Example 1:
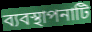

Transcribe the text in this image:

ব্যবস্থাপনাটি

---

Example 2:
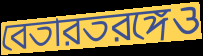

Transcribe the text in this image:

বেতারতরঙ্গেও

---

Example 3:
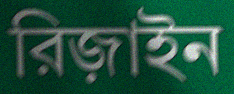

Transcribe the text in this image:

রিজ়াইন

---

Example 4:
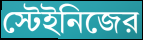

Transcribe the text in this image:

স্টেইনিজের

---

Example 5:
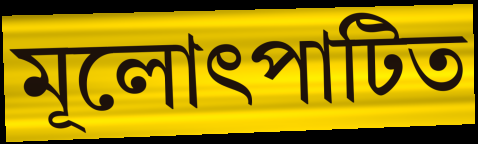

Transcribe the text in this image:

মূলোৎপাটিত